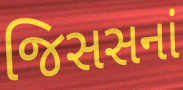
જિસસનાં